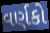
વર્ણકો